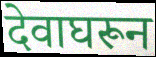
देवाघरून